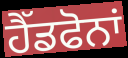
ਹੈੱਡਫੋਨਾਂ